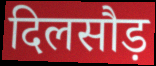
दिलसौड़